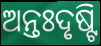
ଅନ୍ତଃଦୃଷ୍ଟି